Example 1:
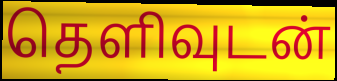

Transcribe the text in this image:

தெளிவுடன்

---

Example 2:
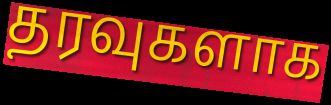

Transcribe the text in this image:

தரவுகளாக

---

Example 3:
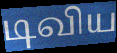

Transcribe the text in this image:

டிவிய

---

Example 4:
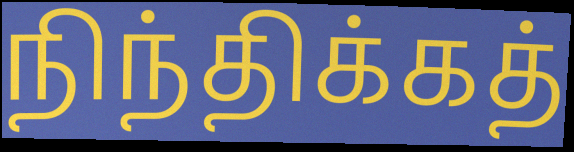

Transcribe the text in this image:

நிந்திக்கத்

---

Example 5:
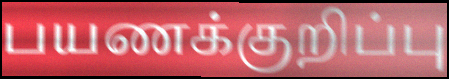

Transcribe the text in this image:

பயணக்குறிப்பு